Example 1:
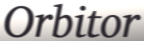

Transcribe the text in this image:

Orbitor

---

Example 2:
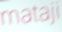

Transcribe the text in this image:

mataji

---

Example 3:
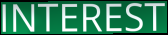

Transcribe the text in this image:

INTEREST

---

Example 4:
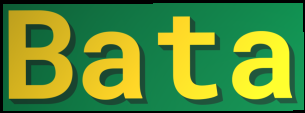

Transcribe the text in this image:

Bata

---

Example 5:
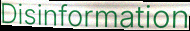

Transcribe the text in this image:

Disinformation